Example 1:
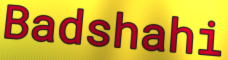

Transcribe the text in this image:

Badshahi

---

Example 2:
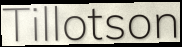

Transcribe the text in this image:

Tillotson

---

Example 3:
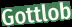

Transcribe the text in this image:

Gottlob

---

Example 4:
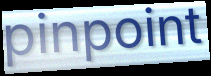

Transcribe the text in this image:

pinpoint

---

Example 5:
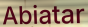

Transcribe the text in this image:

Abiatar